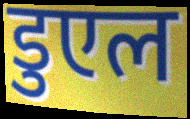
डुएल